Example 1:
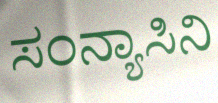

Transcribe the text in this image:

ಸಂನ್ಯಾಸಿನಿ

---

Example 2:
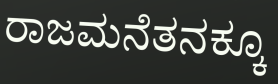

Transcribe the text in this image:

ರಾಜಮನೆತನಕ್ಕೂ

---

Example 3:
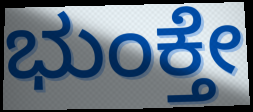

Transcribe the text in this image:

ಭುಂಕ್ತೇ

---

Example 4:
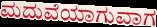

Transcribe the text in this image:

ಮದುವೆಯಾಗುವಾಗ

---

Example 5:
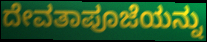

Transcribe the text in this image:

ದೇವತಾಪೂಜೆಯನ್ನು